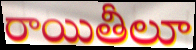
రాయితీలూ